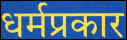
धर्मप्रकार